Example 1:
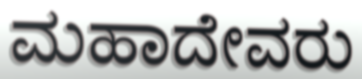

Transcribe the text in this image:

ಮಹಾದೇವರು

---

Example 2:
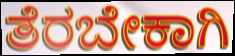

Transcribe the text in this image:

ತೆರಬೇಕಾಗಿ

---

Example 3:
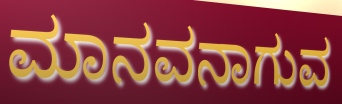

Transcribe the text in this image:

ಮಾನವನಾಗುವ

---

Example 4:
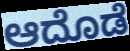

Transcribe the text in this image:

ಆದೊಡೆ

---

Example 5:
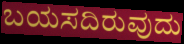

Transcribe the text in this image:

ಬಯಸದಿರುವುದು